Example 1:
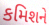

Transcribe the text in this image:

કમિશને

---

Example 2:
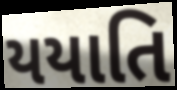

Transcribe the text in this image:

યયાતિ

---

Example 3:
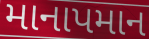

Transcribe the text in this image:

માનાપમાન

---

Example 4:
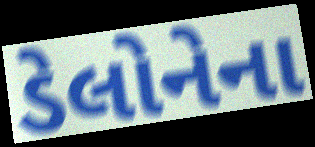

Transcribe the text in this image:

ડેલોનેના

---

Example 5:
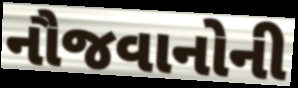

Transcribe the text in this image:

નૌજવાનોની